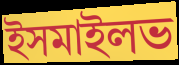
ইসমাইলভ